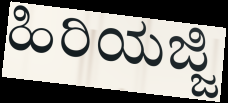
ಹಿರಿಯಜ್ಜಿ